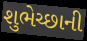
શુભેચ્છાની